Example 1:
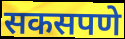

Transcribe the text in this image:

सकसपणे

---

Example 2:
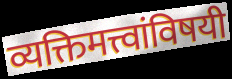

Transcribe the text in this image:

व्यक्तिमत्त्वांविषयी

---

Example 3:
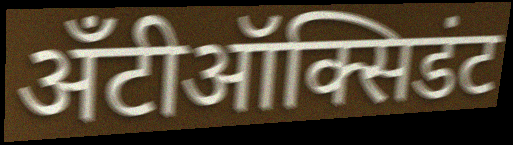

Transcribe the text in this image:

अँटीऑक्सिडंट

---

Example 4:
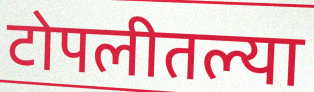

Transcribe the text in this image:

टोपलीतल्या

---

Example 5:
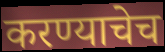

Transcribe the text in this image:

करण्याचेच